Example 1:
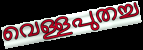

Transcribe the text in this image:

വെള്ളപുതച്ച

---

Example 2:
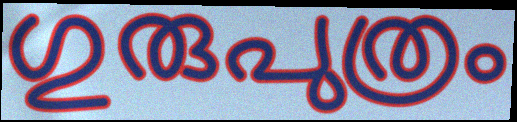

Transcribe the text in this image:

ഗുരുപുത്രം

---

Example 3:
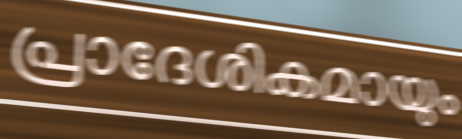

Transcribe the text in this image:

പ്രാദേശികമായും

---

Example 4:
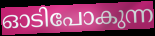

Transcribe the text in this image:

ഓടിപോകുന്ന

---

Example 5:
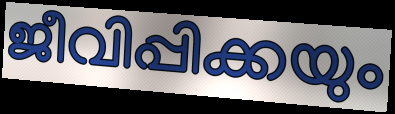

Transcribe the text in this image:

ജീവിപ്പിക്കയും